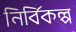
নির্বিকল্প